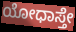
ಯೋಧಾಸ್ತೇ